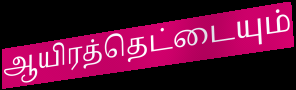
ஆயிரத்தெட்டையும்